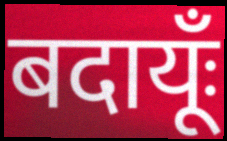
बदायूँः